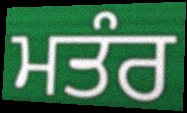
ਮਤੰਰ